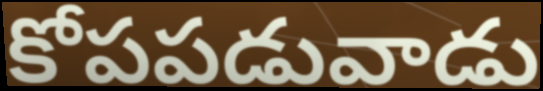
కోపపడువాడు